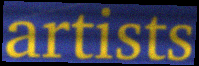
artists